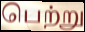
பெற்று